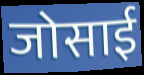
जोसाई